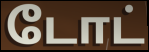
டோட்